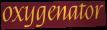
oxygenator